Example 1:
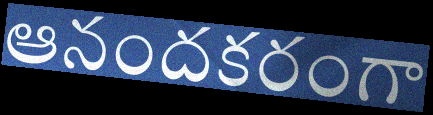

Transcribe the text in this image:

ఆనందకరంగా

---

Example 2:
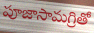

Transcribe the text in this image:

పూజాసామగ్రితో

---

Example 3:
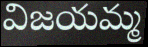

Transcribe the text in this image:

విజయమ్మ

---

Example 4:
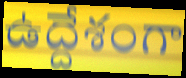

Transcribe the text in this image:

ఉద్దేశంగా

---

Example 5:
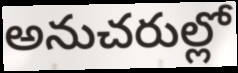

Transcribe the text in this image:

అనుచరుల్లో